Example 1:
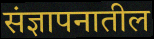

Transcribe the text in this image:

संज्ञापनातील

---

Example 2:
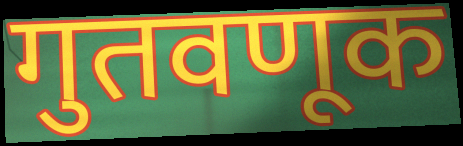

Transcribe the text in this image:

गुतवणूक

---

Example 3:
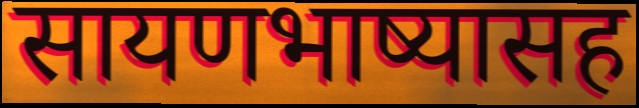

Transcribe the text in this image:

सायणभाष्यासह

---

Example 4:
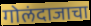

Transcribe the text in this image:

गोलंदाजाचा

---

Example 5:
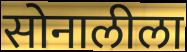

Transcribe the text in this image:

सोनालीला